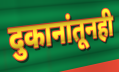
दुकानांतूनही